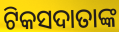
ଟିକସଦାତାଙ୍କ